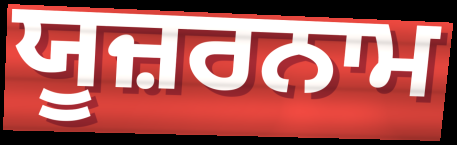
ਯੂਜ਼ਰਨਾਮ